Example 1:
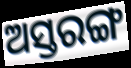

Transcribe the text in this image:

ଅସ୍ତରଙ୍ଗ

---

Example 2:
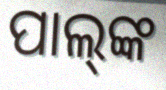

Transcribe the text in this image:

ପାଲ୍‌ଙ୍କ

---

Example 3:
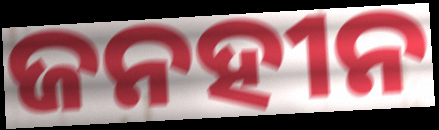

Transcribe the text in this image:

ଜନହୀନ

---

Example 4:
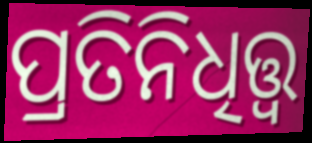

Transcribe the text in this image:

ପ୍ରତିନିଧିତ୍ତ୍ୱ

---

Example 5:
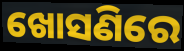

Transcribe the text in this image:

ଖୋସଣିରେ